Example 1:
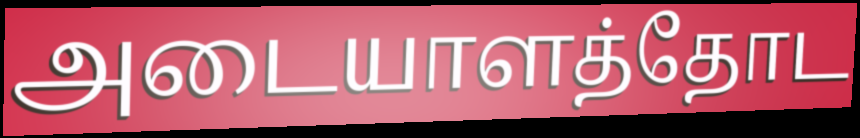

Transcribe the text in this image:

அடையாளத்தோட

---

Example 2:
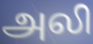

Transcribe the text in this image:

அலி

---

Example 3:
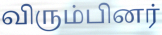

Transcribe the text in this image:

விரும்பினர்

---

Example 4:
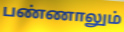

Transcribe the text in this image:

பண்ணாலும்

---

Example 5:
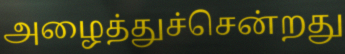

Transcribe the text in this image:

அழைத்துச்சென்றது